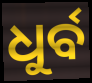
ଧୁର୍ବ